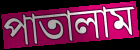
পাতালাম